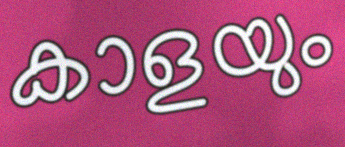
കാളയും